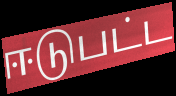
ஈடுபட்ட